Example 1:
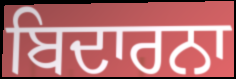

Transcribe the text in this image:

ਬਿਦਾਰਨਾ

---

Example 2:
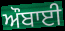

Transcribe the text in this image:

ਔਬਾਈ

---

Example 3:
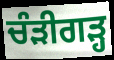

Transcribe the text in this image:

ਚੰੜੀਗੜ੍ਹ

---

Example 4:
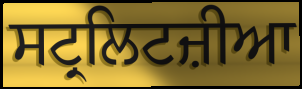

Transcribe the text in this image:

ਸਟ੍ਰਲਿਟਜ਼ੀਆ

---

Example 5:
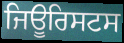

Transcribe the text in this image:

ਜਿਊਰਿਸਟਸ